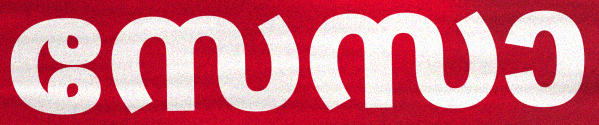
സേസാ